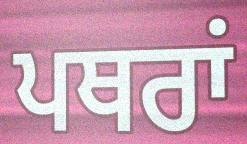
ਪਥਰਾਂ